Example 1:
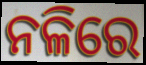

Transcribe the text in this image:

ନଳିରେ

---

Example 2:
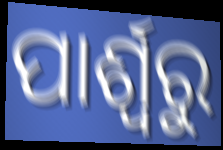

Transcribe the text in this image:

ପାର୍ଶ୍ଵରୁ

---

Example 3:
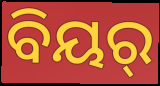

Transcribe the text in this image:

ବିୟର୍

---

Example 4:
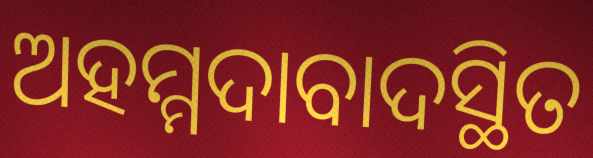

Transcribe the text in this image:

ଅହମ୍ମଦାବାଦସ୍ଥିତ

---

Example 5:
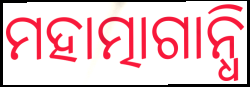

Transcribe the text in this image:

ମହାତ୍ମାଗାନ୍ଧି